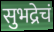
सुभद्रेचं